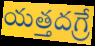
యత్తదగ్రే